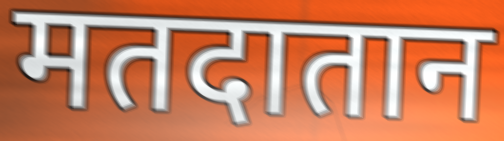
मतदातान